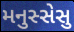
મનુસ્સેસુ